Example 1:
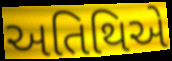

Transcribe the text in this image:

અતિથિએ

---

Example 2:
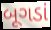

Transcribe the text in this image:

બૂગડાં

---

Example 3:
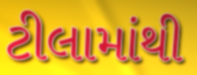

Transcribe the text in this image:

ટીલામાંથી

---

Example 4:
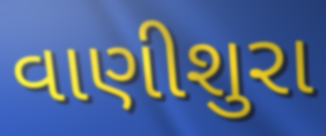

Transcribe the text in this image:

વાણીશુરા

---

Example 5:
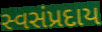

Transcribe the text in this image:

સ્વસંપ્રદાય